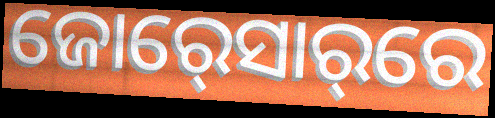
ଜୋର୍‍ସୋର୍‌ରେ